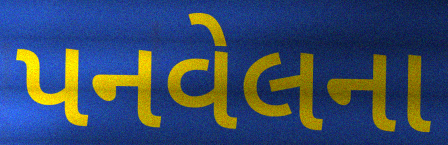
પનવેલના